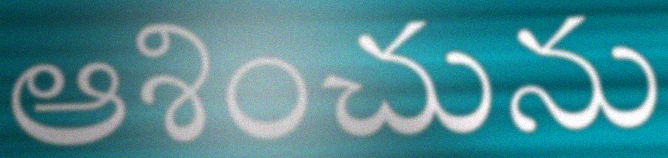
ఆశించును